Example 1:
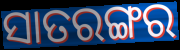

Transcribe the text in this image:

ସାତରଙ୍ଗର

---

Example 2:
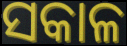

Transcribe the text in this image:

ସକାଳ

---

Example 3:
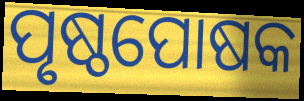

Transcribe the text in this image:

ପୃଷ୍ଠପୋଷକ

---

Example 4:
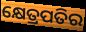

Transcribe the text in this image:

କ୍ଷେତ୍ରପତିର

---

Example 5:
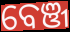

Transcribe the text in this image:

ବେଞ୍ଜ